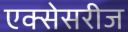
एक्सेसरीज